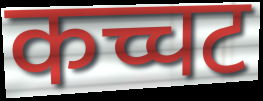
कच्चट